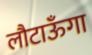
लौटाऊँगा